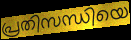
പ്രതിസന്ധിയെ